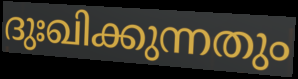
ദുഃഖിക്കുന്നതും